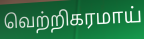
வெற்றிகரமாய்